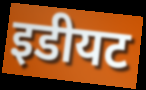
इडीयट